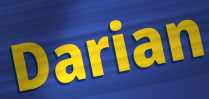
Darian